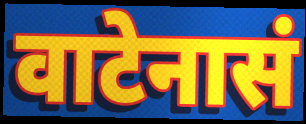
वाटेनासं